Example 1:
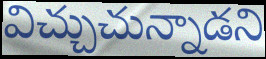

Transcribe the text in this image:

విచ్చుచున్నాడని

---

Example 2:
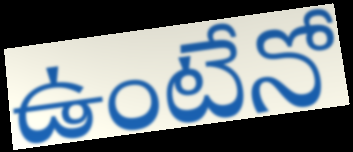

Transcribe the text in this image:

ఉంటేనో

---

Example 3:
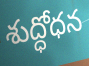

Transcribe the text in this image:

శుద్ధోధన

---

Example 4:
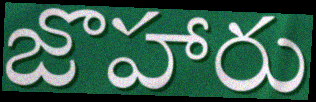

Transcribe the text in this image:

జొహారు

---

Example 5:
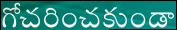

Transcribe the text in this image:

గోచరించకుండా